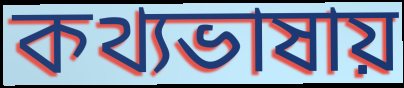
কথ্যভাষায়